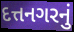
દત્તનગરનું